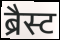
ब्रैस्ट